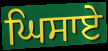
ਘਿਸਾਏ